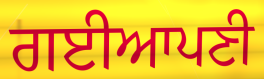
ਗਈਆਪਣੀ